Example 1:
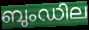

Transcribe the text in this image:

ബുംഡില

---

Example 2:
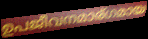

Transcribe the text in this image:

ഉപജീവനമാര്ഗമായ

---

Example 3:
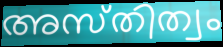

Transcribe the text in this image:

അസ്‌തിത്വം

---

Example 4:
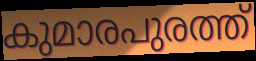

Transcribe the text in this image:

കുമാരപുരത്ത്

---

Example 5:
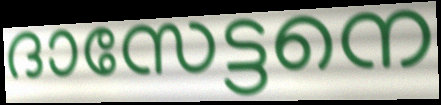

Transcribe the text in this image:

ദാസേട്ടനെ